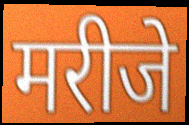
मरीजे